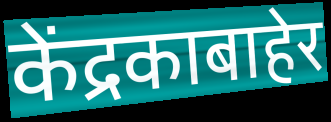
केंद्रकाबाहेर